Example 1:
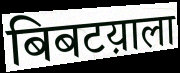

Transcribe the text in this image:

बिबटय़ाला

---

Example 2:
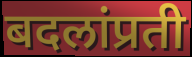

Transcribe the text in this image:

बदलांप्रती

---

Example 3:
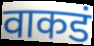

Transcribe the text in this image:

वाकडं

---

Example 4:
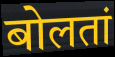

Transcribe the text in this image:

बोलतां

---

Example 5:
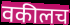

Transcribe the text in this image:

वकीलच